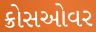
ક્રોસઓવર